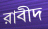
রাবীদ